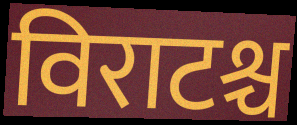
विराटश्च